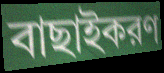
বাছাইকরণ